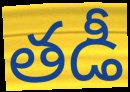
తడీ